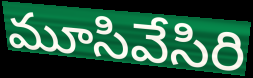
మూసివేసిరి